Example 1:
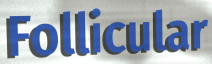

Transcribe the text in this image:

Follicular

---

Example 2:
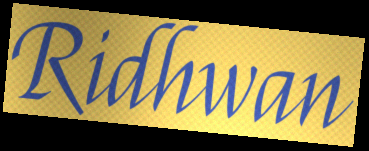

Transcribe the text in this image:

Ridhwan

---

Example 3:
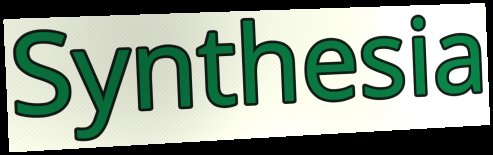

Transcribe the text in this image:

Synthesia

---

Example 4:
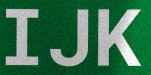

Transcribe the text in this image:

IJK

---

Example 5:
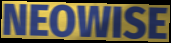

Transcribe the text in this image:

NEOWISE